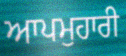
ਆਪਮੁਹਾਰੀ